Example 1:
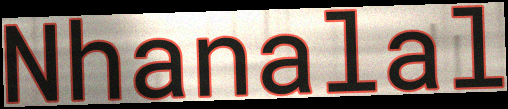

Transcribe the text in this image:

Nhanalal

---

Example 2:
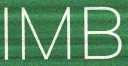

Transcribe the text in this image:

IMB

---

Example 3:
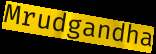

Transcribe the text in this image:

Mrudgandha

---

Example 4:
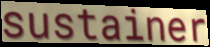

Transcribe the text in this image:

sustainer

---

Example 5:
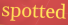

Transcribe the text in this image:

spotted